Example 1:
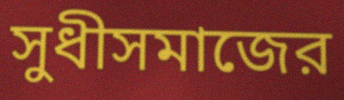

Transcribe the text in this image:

সুধীসমাজের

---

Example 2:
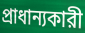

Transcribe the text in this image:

প্রাধান্যকারী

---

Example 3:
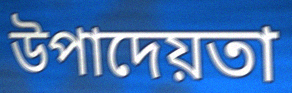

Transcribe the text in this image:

উপাদেয়তা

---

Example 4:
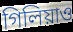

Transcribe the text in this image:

গিলিয়াও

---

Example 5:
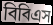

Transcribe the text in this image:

বিবিএস